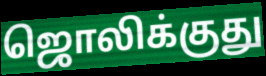
ஜொலிக்குது